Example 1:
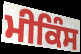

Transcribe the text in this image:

ਮੀਕਿੰਸ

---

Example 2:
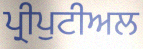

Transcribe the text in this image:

ਪ੍ਰੀਪੁਟੀਅਲ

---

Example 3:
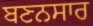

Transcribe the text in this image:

ਬਣਨਸਾਰ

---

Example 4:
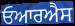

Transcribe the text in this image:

ਓਆਰਐਸ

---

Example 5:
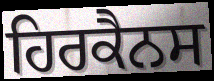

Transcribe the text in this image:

ਹਿਰਕੈਨਸ